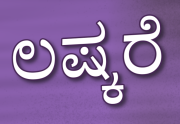
ಲಷ್ಕರೆ